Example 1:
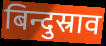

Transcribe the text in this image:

बिन्दुस्राव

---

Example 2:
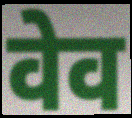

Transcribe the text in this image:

वेव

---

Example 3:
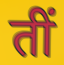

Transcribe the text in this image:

तीं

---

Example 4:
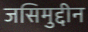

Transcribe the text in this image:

जसिमुद्दीन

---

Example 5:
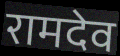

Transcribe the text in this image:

रामदेव